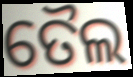
ତୈଲ